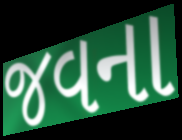
જવના